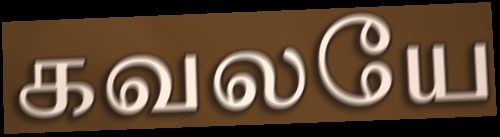
கவலயே